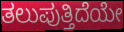
ತಲುಪುತ್ತಿದೆಯೇ